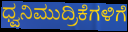
ಧ್ವನಿಮುದ್ರಿಕೆಗಳಿಗೆ